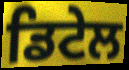
ਡਿਟੇਲ